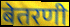
बेतरणी